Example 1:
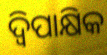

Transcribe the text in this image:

ଦ୍ବିପାକ୍ଷିକ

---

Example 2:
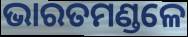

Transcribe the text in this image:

ଭାରତମଣ୍ଡଳେ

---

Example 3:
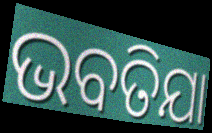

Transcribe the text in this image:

ଭବତିଯା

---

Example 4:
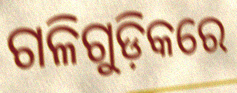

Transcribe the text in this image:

ଗଳିଗୁଡ଼ିକରେ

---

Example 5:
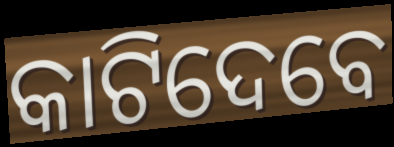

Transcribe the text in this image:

କାଟିଦେବେ